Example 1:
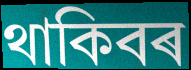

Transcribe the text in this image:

থাকিবৰ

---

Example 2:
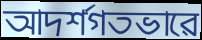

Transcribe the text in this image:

আদৰ্শগতভাৱে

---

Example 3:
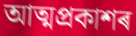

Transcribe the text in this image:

আত্মপ্ৰকাশৰ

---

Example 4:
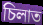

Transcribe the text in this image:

চিলাত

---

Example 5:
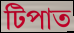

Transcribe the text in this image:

টিপাত